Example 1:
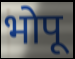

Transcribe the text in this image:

भोपू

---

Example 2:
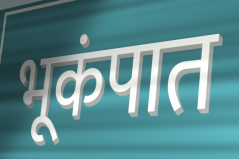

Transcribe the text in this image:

भूकंपात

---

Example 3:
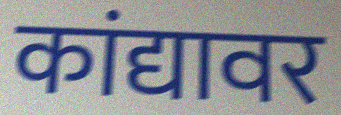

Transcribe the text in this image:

कांद्यावर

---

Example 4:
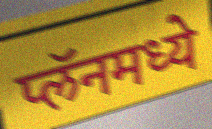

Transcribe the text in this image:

प्लॅनमध्ये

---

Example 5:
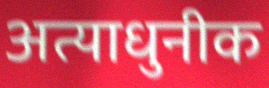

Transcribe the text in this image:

अत्याधुनीक